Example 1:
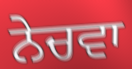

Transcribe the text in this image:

ਨੇਚਵਾ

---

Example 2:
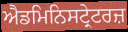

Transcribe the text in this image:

ਐਡਮਿਨਿਸਟ੍ਰੇਟਰਜ਼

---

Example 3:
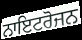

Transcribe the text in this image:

ਨਾਇਟਰੋਜਨ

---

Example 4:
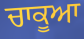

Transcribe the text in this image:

ਚਾਕੂਆ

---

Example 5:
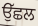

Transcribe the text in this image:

ਉੱਛਲ